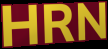
HRN